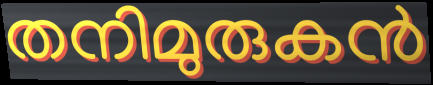
തനിമുരുകൻ